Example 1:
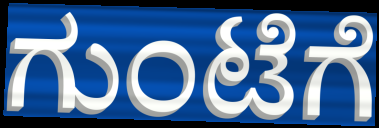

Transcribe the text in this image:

ಗುಂಟೆಗೆ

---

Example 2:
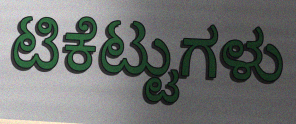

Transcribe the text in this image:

ಟಿಕೆಟ್ಟುಗಳು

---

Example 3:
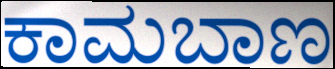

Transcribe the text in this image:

ಕಾಮಬಾಣ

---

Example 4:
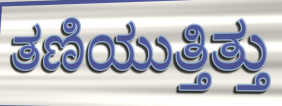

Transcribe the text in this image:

ತಣಿಯುತ್ತಿತ್ತು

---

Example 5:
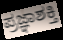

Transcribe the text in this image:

ಪ್ರಜ್ಞಾಶಕ್ತಿ